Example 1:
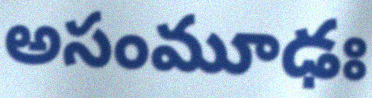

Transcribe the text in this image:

అసంమూఢః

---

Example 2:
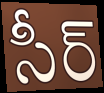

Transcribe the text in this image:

సీర్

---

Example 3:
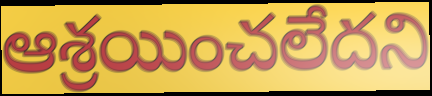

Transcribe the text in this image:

ఆశ్రయించలేదని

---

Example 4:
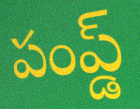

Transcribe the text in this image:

పంప్డ్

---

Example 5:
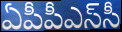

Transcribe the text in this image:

ఏపీపీఎస్‌సీ